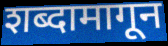
शब्दामागून